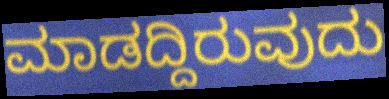
ಮಾಡದ್ದಿರುವುದು